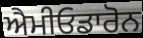
ਐਮੀਓਡਾਰੋਨ